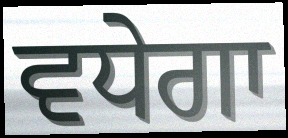
ਵਧੇਗਾ